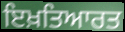
ਇਖ਼ਤਿਆਰਤ